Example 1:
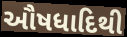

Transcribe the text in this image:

ઔષધાદિથી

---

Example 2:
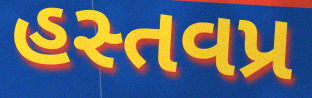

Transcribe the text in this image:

હસ્તવપ્ર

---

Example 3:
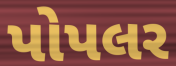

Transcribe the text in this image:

પોપલર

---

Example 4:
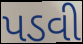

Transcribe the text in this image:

પડવી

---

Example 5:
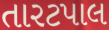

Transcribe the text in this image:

તારટપાલ